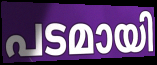
പടമായി